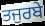
ਤਜੁਰਬੇ